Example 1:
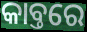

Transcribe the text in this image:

କାବ୍ତରେ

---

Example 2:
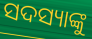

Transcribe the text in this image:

ସଦସ୍ୟାଙ୍କୁ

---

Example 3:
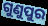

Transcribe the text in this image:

ଗୁଣୁପୁର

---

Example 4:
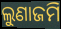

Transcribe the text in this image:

ଲୁଣାଜମି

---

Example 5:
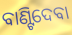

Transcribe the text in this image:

ବାଣ୍ଟିଦେବା